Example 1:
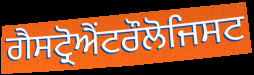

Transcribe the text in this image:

ਗੈਸਟ੍ਰੋਐਂਟਰੌਲੋਜਿਸਟ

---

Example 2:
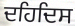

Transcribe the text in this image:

ਦਹਿਦਿਸ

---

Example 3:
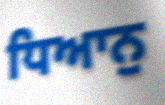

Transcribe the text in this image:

ਧਿਆਨੁ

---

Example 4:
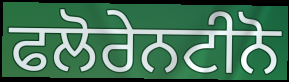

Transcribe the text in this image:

ਫਲੋਰੇਨਟੀਨੋ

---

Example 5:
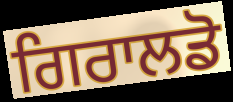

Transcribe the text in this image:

ਗਿਰਾਲਡੋ